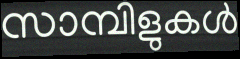
സാമ്പിളുകൾ